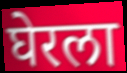
घेरला